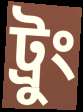
ট্রুং